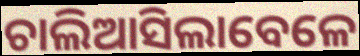
ଚାଲିଆସିଲାବେଳେ